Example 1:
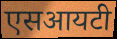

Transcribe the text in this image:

एसआयटी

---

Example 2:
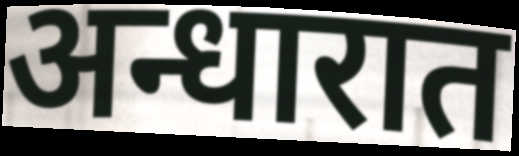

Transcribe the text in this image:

अन्धारात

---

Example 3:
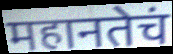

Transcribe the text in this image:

महानतेचं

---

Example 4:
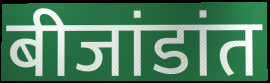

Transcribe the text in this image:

बीजांडांत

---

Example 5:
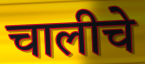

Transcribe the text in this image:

चालीचे